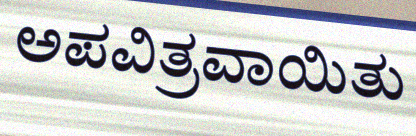
ಅಪವಿತ್ರವಾಯಿತು